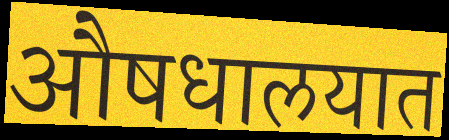
औषधालयात